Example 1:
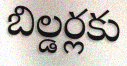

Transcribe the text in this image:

బిల్డర్లకు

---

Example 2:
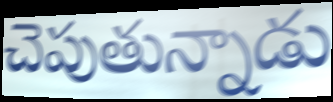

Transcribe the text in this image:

చెపుతున్నాడు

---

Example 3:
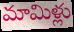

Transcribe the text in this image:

మామిళ్లు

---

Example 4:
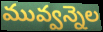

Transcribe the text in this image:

మువ్వన్నెల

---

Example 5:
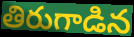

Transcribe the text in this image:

తిరుగాడిన